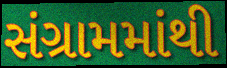
સંગ્રામમાંથી